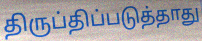
திருப்திப்படுத்தாது